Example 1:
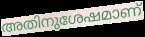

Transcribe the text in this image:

അതിനുശേഷമാണ്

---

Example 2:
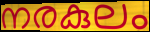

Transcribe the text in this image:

നരകുലം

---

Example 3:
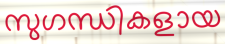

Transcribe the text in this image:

സുഗന്ധികളായ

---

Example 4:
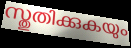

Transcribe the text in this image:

സ്തുതിക്കുകയും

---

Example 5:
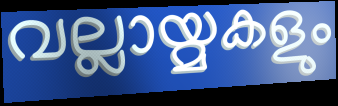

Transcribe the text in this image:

വല്ലായ്മകളും